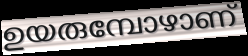
ഉയരുമ്പോഴാണ്